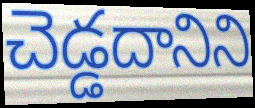
చెడ్డదానిని